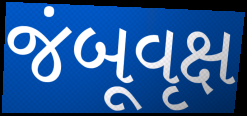
જંબૂવૃક્ષ